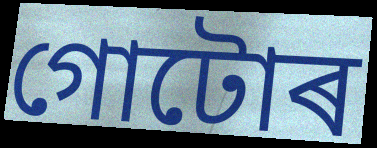
গোটোৰ